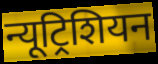
न्यूट्रिशियन